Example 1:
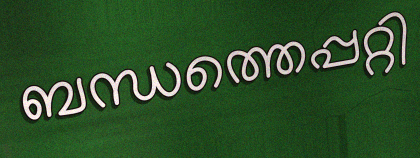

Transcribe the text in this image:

ബന്ധത്തെപ്പറ്റി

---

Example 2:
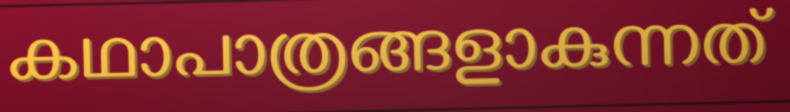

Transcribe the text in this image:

കഥാപാത്രങ്ങളാകുന്നത്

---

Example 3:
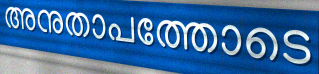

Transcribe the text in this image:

അനുതാപത്തോടെ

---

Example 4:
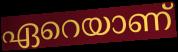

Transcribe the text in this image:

ഏറെയാണ്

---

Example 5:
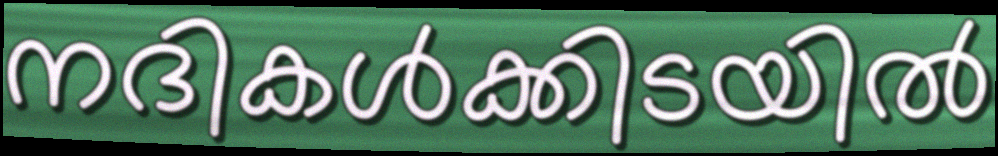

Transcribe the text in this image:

നദികൾക്കിടയിൽ